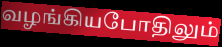
வழங்கியபோதிலும்